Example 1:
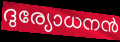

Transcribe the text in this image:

ദുര്യോധനൻ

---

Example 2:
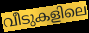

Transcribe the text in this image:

വീടുകളിലെ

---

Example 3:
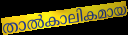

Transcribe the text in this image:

താൽകാലികമായ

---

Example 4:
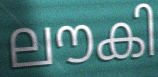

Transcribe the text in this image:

ലൗകി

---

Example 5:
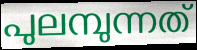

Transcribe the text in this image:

പുലമ്പുന്നത്